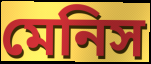
মেনিস